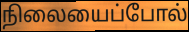
நிலையைப்போல்